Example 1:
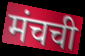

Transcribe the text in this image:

मंचची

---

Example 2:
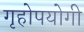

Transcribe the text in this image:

गृहोपयोगी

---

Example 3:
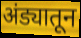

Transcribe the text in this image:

अंड्यातून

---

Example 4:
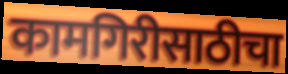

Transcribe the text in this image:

कामगिरीसाठीचा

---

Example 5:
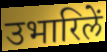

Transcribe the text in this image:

उभारिलें